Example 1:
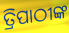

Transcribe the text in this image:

ତ୍ରିପାଠୀଙ୍କ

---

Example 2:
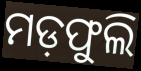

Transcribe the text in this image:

ମଡ଼ଫୁଲି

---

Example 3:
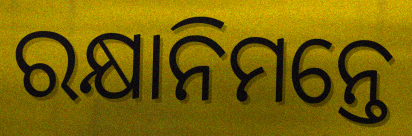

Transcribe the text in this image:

ରକ୍ଷାନିମନ୍ତେ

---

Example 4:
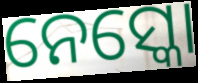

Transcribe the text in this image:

ନେସ୍କୋ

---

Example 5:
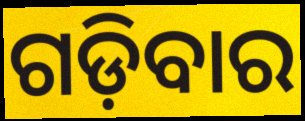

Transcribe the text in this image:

ଗଡ଼ିବାର